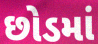
છોડમાં